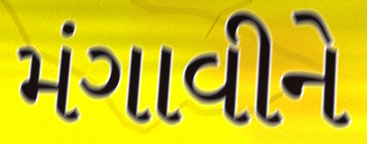
મંગાવીને